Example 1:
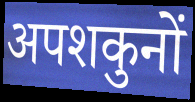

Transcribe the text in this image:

अपशकुनों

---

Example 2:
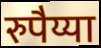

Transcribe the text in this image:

रुपैय्या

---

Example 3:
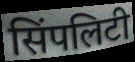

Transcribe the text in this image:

सिंपलिटी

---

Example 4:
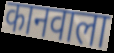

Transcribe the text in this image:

कानवाला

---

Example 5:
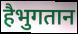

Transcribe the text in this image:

हैभुगतान